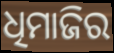
ଧିମାଜିର